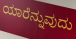
ಯಾರೆನ್ನುವುದು